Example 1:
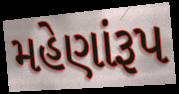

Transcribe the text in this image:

મહેણાંરૂપ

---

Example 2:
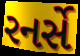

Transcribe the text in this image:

રનર્સે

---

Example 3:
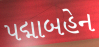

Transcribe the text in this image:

પદ્માબહેન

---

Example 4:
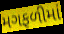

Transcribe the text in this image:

મગફળીમાં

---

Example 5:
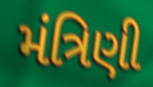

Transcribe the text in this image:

મંત્રિણી